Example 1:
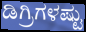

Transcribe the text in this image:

ಡಿಗ್ರಿಗಳಷ್ಟು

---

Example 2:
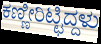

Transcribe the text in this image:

ಕಣ್ಣೀರಿಟ್ಟಿದ್ದಳು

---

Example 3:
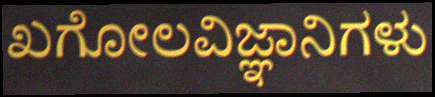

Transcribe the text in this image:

ಖಗೋಲವಿಜ್ಞಾನಿಗಳು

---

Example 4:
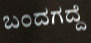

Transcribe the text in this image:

ಬಂದಗದ್ದೆ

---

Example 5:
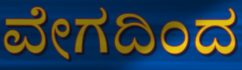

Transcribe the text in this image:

ವೇಗದಿಂದ